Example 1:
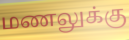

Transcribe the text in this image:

மணலுக்கு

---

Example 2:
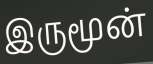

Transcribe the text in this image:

இருமூன்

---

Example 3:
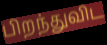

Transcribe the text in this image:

பிறந்துவிட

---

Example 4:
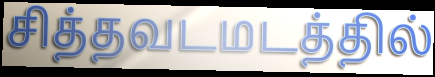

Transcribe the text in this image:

சித்தவடமடத்தில்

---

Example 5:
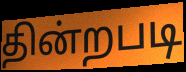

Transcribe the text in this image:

தின்றபடி